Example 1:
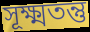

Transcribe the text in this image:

সূক্ষ্মতন্তু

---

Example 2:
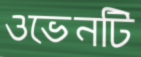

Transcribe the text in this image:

ওভেনটি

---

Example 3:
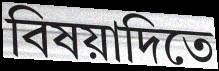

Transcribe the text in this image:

বিষয়াদিতে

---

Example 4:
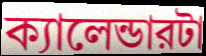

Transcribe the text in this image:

ক্যালেন্ডারটা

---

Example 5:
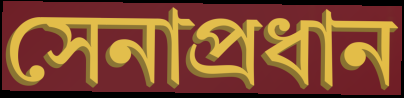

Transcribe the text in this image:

সেনাপ্রধান